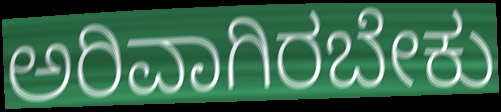
ಅರಿವಾಗಿರಬೇಕು